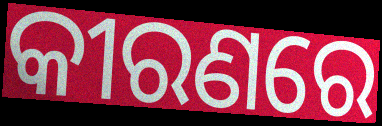
କୀରଣରେ